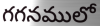
గగనములో